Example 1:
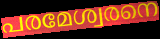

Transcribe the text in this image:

പരമേശ്വരനെ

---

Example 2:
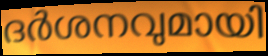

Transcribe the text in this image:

ദർശനവുമായി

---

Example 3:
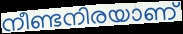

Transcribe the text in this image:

നീണ്ടനിരയാണ്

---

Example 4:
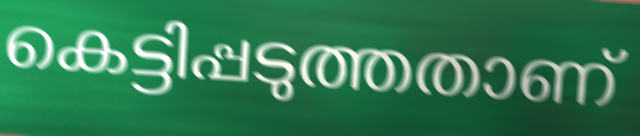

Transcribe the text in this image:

കെട്ടിപ്പടുത്തതാണ്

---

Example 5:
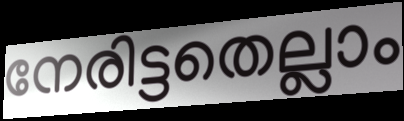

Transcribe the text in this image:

നേരിട്ടതെല്ലാം